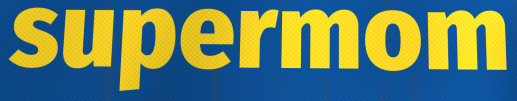
supermom